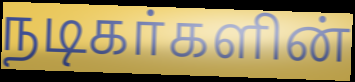
நடிகர்களின்